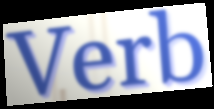
Verb